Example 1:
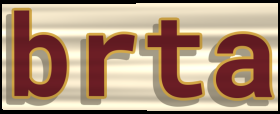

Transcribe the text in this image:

brta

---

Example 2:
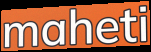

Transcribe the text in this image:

maheti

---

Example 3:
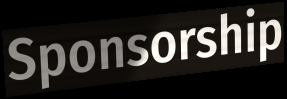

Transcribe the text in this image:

Sponsorship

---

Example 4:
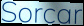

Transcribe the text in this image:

Sorcar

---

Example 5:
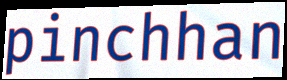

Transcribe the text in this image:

pinchhan